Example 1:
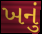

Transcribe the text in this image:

ખનું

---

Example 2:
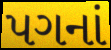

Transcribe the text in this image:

પગનાં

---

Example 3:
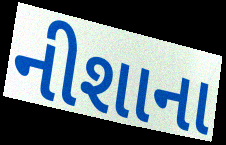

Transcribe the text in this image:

નીશાના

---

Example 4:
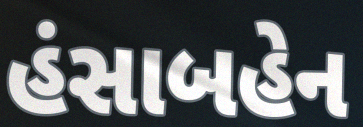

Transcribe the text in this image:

હંસાબહેન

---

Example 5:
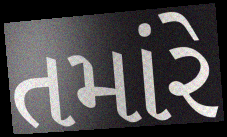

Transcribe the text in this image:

તમાંરે